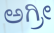
ಅಗ್ರೀ